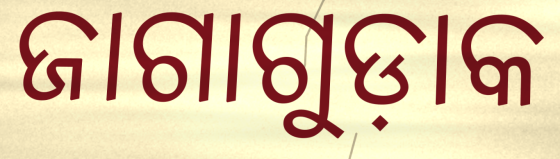
ଜାଗାଗୁଡ଼ାକ